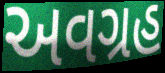
અવગ્રહ